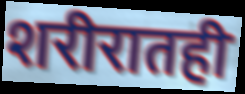
शरीरातही